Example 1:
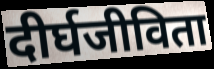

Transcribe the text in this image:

दीर्घजीविता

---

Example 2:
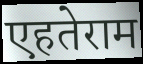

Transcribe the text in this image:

एहतेराम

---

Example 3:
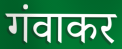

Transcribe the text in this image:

गंवाकर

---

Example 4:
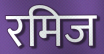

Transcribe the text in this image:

रमिज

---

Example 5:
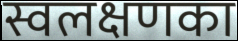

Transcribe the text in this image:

स्वलक्षणका